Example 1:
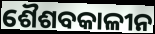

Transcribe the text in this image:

ଶୈଶବକାଳୀନ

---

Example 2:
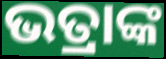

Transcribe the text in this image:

ଭତ୍ରାଙ୍କ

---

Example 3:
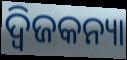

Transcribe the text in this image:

ଦ୍ୱିଜକନ୍ୟା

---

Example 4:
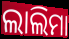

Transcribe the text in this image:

ଲାଲିମା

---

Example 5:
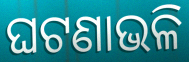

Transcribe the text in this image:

ଘଟଣାଭଳି